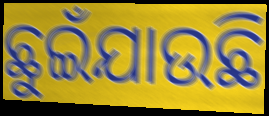
ଛୁଇଁଯାଉଛି